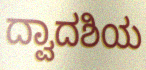
ದ್ವಾದಶಿಯ